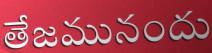
తేజమునందు